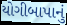
યોગીબાપાનું